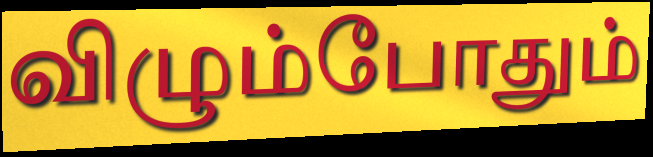
விழும்போதும்